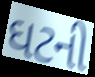
ઘટની